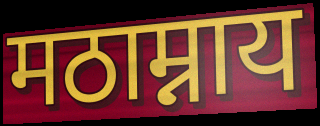
मठाम्नाय